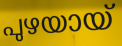
പുഴയായ്